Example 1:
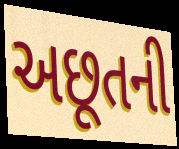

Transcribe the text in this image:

અછૂતની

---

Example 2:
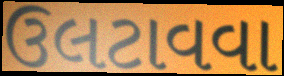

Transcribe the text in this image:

ઉલટાવવા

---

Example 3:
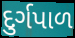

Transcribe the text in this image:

દુર્ગપાળ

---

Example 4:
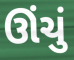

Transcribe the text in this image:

ઊંચું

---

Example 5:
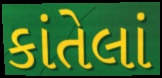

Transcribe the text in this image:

કાંતેલાં